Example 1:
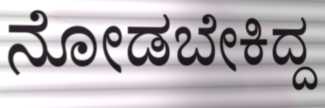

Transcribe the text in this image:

ನೋಡಬೇಕಿದ್ದ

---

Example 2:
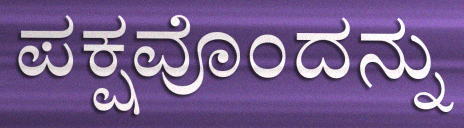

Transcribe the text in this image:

ಪಕ್ಷವೊಂದನ್ನು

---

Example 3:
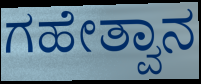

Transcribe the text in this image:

ಗಹೇತ್ವಾನ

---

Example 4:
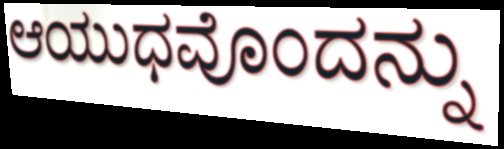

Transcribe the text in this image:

ಆಯುಧವೊಂದನ್ನು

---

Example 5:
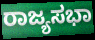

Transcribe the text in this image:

ರಾಜ್ಯಸಭಾ